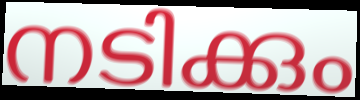
നടിക്കും